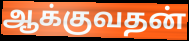
ஆக்குவதன்